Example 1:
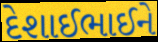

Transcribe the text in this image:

દેશાઈભાઈને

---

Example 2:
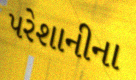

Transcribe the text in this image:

પરેશાનીના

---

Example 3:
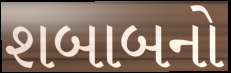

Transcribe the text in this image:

શબાબનો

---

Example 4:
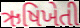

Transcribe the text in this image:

ઋષિખેતી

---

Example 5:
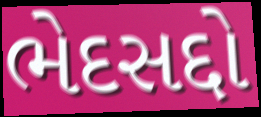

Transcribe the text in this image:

ભેદસદ્દો